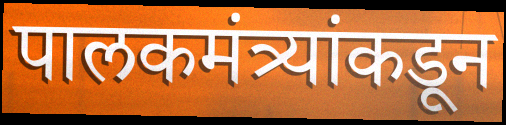
पालकमंत्र्यांकडून